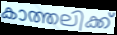
കാത്തലിക്ക്